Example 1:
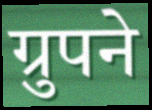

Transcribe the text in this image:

ग्रुपने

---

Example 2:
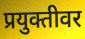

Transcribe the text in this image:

प्रयुक्तीवर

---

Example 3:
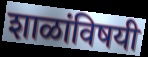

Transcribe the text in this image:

शाळांविषयी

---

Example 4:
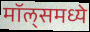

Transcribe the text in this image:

मॉल्समध्ये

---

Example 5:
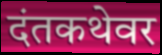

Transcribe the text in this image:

दंतकथेवर